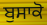
ਬੁਸਾਕੋ